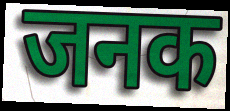
जनक